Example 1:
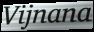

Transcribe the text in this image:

Vijnana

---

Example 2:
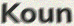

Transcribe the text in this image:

Koun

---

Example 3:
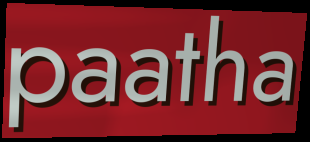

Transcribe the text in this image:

paatha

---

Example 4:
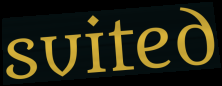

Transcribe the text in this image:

suited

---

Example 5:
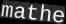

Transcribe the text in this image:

mathe